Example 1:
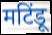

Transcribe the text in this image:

मटिंडू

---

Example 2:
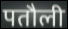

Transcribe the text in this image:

पतौली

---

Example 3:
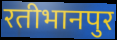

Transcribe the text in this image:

रतीभानपुर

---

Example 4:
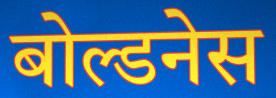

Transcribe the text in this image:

बोल्डनेस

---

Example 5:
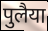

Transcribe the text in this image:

पुलैया